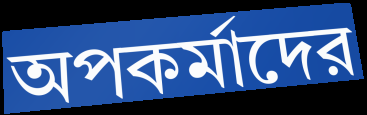
অপকর্মাদের